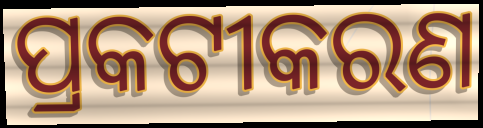
ପ୍ରକଟୀକରଣ